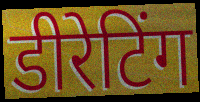
डीरेटिंग